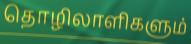
தொழிலாளிகளும்